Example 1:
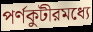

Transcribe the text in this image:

পর্ণকুটীরমধ্যে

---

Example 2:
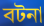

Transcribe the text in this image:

বটনা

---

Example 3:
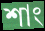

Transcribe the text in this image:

শাং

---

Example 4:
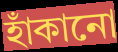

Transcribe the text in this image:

হাঁকানো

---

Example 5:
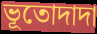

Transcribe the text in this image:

ভূতোদাদা